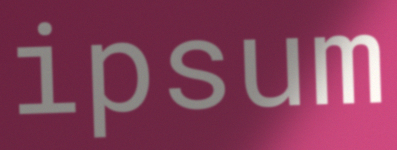
ipsum